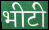
भीटी